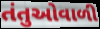
તંતુઓવાળી